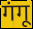
गंगू